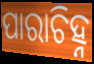
ପାରାଚିହ୍ନ